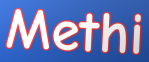
Methi